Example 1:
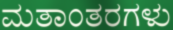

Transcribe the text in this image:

ಮತಾಂತರಗಳು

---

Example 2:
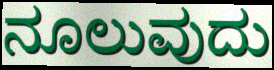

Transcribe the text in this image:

ನೂಲುವುದು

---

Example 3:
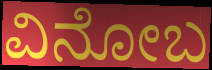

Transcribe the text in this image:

ವಿನೋಬ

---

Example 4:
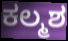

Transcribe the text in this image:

ಕಲ್ಮಶ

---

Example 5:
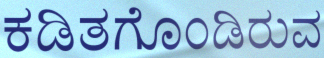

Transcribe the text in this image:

ಕಡಿತಗೊಂಡಿರುವ